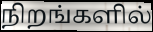
நிறங்களில்